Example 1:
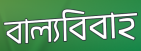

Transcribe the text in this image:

বাল্যবিবাহ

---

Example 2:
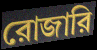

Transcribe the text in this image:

রোজারি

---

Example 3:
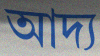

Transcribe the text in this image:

আদ্য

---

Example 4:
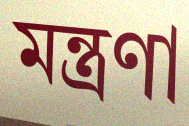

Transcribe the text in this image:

মন্ত্রণা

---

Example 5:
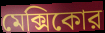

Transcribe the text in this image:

মেক্সিকোর